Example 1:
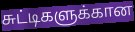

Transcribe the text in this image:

சுட்டிகளுக்கான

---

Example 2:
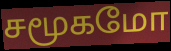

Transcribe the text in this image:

சமூகமோ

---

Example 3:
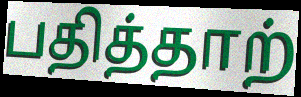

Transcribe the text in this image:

பதித்தாற்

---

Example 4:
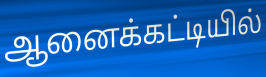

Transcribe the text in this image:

ஆனைக்கட்டியில்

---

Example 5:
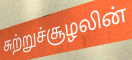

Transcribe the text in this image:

சுற்றுச்சூழலின்